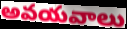
అవయవాలు